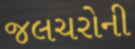
જલચરોની